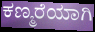
ಕಣ್ಮರೆಯಾಗಿ